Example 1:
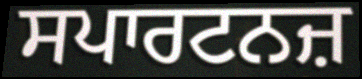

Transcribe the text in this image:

ਸਪਾਰਟਨਜ਼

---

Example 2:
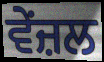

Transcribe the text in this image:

ਵੇਂਜ਼ਲ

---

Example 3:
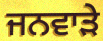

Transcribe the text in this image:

ਜਨਵਾੜੇ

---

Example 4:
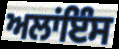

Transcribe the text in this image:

ਅਲਾਂਇੰਸ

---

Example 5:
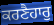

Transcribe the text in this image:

ਕਰਣੈਹਾਰੁ